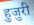
हुजुरी